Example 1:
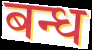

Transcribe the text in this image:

बन्ध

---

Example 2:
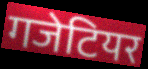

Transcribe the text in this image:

गजेटियर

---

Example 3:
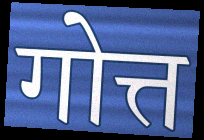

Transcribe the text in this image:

गोत्त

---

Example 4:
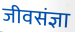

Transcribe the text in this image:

जीवसंज्ञा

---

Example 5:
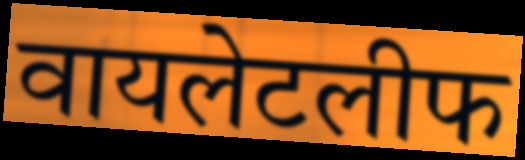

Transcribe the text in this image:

वायलेटलीफ